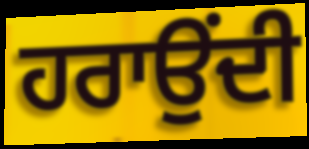
ਹਰਾਉਂਦੀ